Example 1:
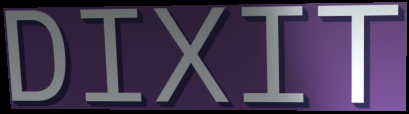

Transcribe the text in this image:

DIXIT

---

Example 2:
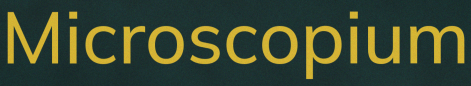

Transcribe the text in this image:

Microscopium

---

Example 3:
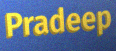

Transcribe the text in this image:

Pradeep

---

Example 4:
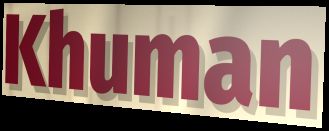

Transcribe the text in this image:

Khuman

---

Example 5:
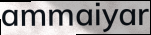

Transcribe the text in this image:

ammaiyar